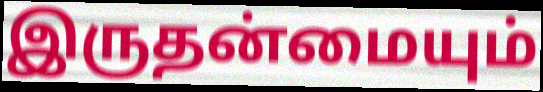
இருதன்மையும்